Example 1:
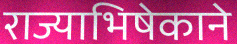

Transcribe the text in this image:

राज्याभिषेकाने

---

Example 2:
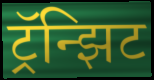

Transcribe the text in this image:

ट्रॅन्झिट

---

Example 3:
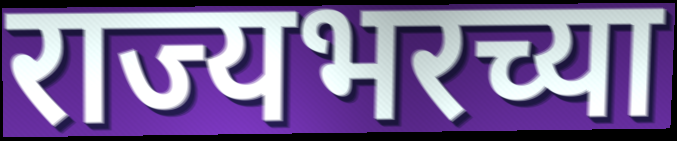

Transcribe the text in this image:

राज्यभरच्या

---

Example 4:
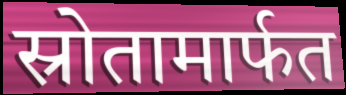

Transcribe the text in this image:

स्रोतामार्फत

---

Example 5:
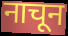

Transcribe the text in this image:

नाचून